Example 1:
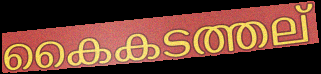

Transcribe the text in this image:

കൈകടത്തല്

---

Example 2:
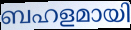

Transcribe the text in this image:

ബഹളമായി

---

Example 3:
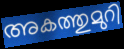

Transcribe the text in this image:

അകത്തുമുറി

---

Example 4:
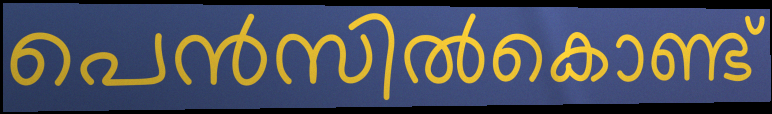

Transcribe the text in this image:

പെൻസിൽകൊണ്ട്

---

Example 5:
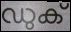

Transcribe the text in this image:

ഡുക്